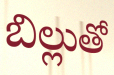
బిల్లుతో